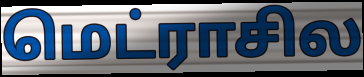
மெட்ராசில